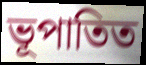
ভূপাতিত